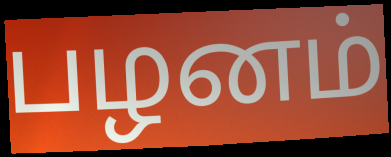
பழனம்